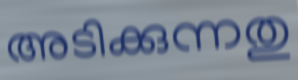
അടിക്കുന്നതു